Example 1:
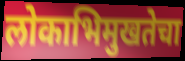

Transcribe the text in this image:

लोकाभिमुखतेचा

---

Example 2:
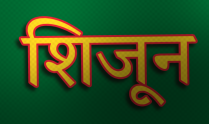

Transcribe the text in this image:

शिजून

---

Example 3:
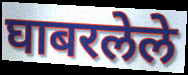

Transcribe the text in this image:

घाबरलेले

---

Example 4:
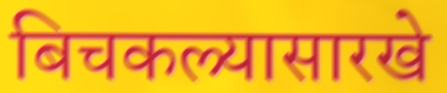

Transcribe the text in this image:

बिचकल्यासारखे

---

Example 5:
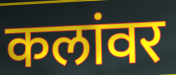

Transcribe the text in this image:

कलांवर